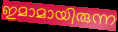
ഇമാമായിരുന്ന